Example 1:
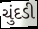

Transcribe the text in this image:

ચુંદડી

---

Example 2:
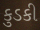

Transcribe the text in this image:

કુડકી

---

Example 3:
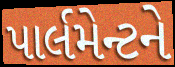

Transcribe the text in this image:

પાર્લમેન્ટને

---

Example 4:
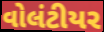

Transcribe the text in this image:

વોલંટીયર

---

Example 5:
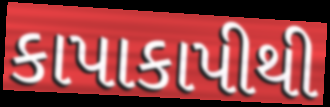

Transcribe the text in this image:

કાપાકાપીથી